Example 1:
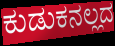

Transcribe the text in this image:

ಕುಡುಕನಲ್ಲದ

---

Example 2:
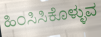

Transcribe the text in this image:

ಹಿಂಸಿಸಿಕೊಳ್ಳುವ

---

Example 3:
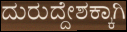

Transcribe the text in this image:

ದುರುದ್ದೇಶಕ್ಕಾಗಿ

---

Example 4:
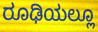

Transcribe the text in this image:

ರೂಢಿಯಲ್ಲೂ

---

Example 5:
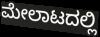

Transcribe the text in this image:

ಮೇಲಾಟದಲ್ಲಿ